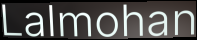
Lalmohan